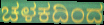
ಚಳಕದಿಂದ